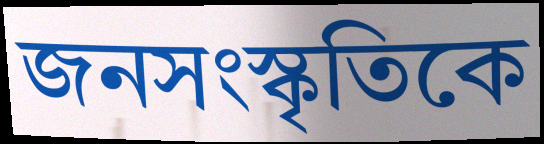
জনসংস্কৃতিকে